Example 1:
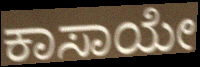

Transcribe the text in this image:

ಕಾಸಾಯೇ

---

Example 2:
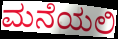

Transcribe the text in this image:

ಮನೆಯಲಿ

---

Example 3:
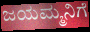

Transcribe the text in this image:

ಜಯಮ್ಮನಿಗೆ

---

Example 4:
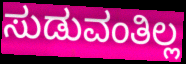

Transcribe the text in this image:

ಸುಡುವಂತಿಲ್ಲ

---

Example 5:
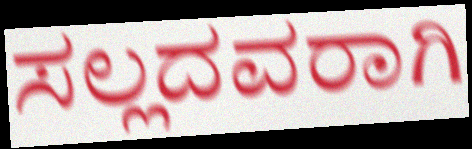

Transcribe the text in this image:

ಸಲ್ಲದವರಾಗಿ